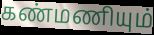
கண்மணியும்